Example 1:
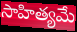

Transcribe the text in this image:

సాహిత్యమే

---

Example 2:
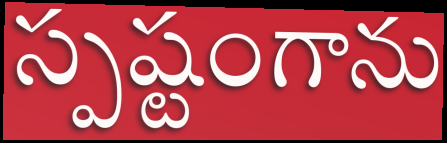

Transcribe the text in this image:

స్పష్టంగాను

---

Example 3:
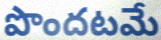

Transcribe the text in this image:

పొందటమే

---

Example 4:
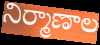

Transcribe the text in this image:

నిర్మాణాల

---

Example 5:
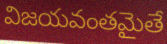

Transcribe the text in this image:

విజయవంతమైతే